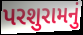
પરશુરામનું